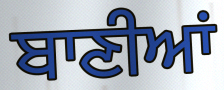
ਬਾਣੀਆਂ